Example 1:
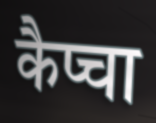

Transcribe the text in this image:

कैप्चा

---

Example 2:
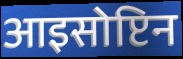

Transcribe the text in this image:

आइसोप्टिन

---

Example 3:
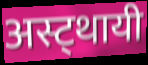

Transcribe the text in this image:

अस्ट्थायी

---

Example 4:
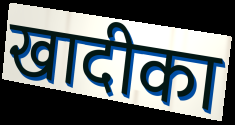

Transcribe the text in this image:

खादीका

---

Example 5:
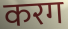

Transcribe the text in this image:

करग